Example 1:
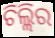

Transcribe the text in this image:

ଚିଲ୍ଲିର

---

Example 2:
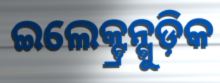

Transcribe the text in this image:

ଇଲେକ୍ଟ୍ରନ୍ଗୁଡ଼ିକ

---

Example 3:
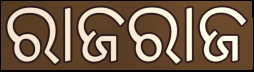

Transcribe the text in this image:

ରାଜରାଜ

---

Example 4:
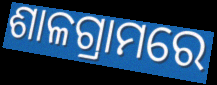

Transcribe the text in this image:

ଶାଳଗ୍ରାମରେ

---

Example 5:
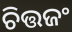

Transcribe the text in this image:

ଚିତ୍ତଜଂ